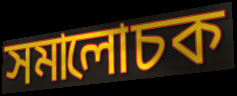
সমালোচক